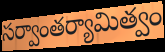
సర్వాంతర్యామిత్వం